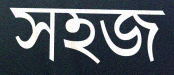
সহজ